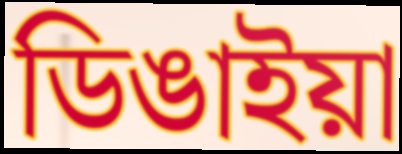
ডিঙাইয়া